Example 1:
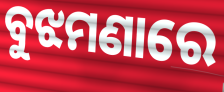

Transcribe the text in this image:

ବୁଝମଣାରେ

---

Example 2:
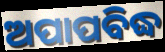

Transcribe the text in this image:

ଅପାପବିଦ୍ଧ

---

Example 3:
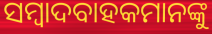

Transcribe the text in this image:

ସମ୍ବାଦବାହକମାନଙ୍କୁ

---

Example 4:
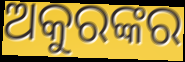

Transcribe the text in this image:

ଅକୁରଙ୍କର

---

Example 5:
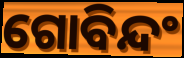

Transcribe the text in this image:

ଗୋବିନ୍ଦଂ